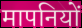
मापनियों